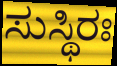
ಸುಸ್ಥಿರಃ